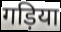
गड़िया